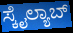
ಸ್ಕೈಲ್ಯಾಬ್